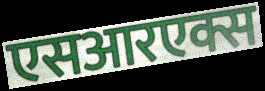
एसआरएक्स